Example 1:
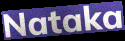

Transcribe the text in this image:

Nataka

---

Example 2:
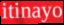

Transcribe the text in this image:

itinayo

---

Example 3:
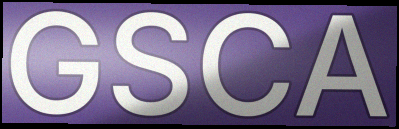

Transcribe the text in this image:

GSCA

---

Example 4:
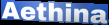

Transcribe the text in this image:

Aethina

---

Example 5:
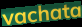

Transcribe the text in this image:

vachata